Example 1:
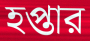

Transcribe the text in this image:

হপ্তার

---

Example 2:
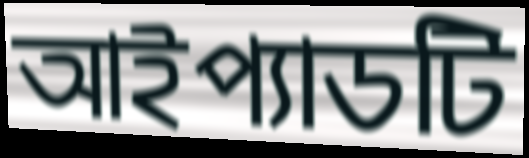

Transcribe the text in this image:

আইপ্যাডটি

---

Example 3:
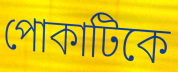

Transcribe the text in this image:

পোকাটিকে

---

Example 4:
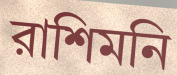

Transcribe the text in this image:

রাশিমনি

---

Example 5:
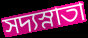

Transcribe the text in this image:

সদ্যস্নাতা